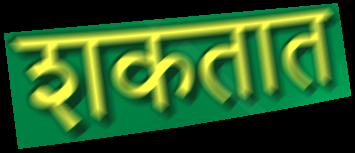
शकतात